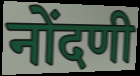
नोंदणी